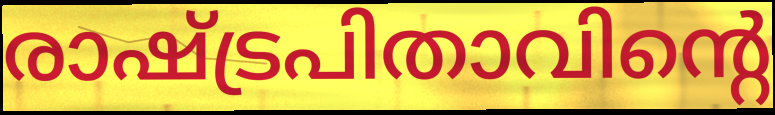
രാഷ്ട്രപിതാവിന്റെ